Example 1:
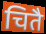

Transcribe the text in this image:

चितै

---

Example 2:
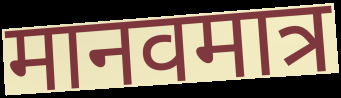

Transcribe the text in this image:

मानवमात्र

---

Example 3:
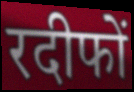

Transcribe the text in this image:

रदीफों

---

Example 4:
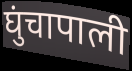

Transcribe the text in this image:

घुंचापाली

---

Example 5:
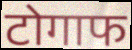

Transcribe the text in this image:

टोगाफ